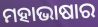
ମହାଭାଷାର